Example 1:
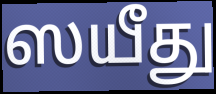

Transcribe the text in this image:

ஸயீது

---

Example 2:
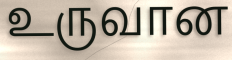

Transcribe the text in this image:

உருவான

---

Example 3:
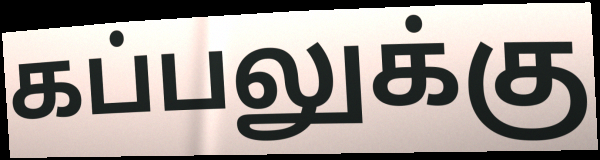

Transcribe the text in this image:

கப்பலுக்கு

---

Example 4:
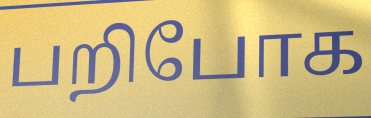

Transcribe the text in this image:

பறிபோக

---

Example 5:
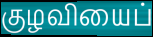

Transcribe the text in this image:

குழவியைப்